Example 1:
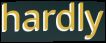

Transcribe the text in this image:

hardly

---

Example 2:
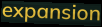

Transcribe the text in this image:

expansion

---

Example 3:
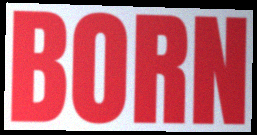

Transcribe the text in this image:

BORN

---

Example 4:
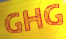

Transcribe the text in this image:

GHG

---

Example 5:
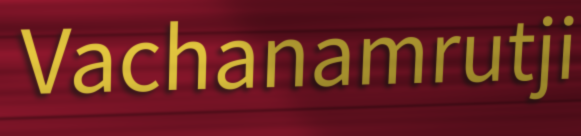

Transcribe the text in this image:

Vachanamrutji